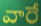
వారే